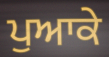
ਪੁਆਕੇ